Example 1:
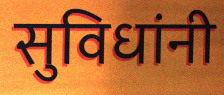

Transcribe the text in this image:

सुविधांनी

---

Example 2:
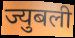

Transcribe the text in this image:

ज्युबली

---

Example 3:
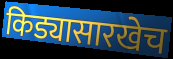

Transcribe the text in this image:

किड्यासारखेच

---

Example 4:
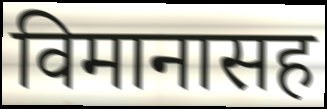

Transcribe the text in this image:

विमानासह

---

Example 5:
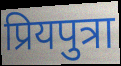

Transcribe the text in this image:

प्रियपुत्रा